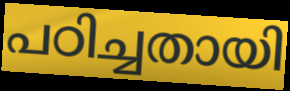
പഠിച്ചതായി